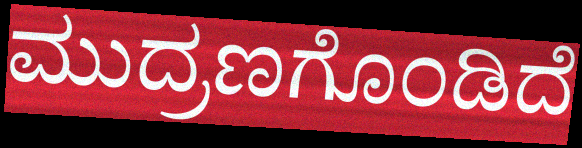
ಮುದ್ರಣಗೊಂಡಿದೆ